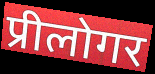
प्रीलोगर